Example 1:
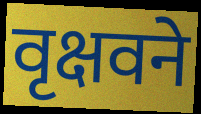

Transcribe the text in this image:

वृक्षवने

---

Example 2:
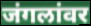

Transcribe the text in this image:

जंगलांवर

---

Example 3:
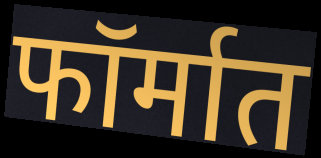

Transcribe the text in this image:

फॉर्मात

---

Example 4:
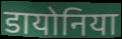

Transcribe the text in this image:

डायोनिया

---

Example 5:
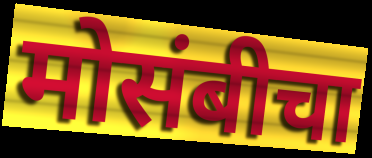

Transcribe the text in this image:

मोसंबीचा